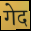
गेद